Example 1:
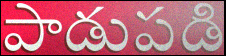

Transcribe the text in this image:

పాడుపడి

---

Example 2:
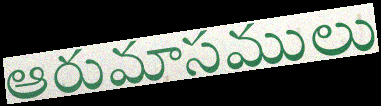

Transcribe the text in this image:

ఆరుమాసములు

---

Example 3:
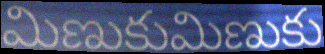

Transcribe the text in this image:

మిణుకుమిణుకు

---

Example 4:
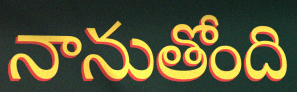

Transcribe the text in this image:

నానుతోంది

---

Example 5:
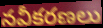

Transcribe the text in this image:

నవీకరణలు